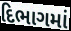
દિભાગમાં